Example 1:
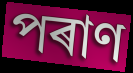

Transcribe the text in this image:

পৰাণ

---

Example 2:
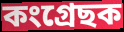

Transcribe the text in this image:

কংগ্ৰেছক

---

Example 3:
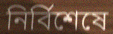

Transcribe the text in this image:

নিৰ্বিশেষে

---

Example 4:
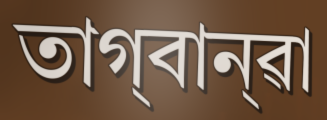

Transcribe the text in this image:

তাগ্‌বান্‌ৱা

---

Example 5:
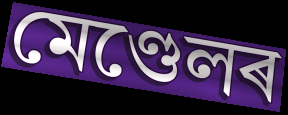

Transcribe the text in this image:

মেণ্ডেলৰ